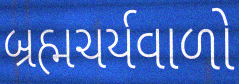
બ્રહ્મચર્યવાળો